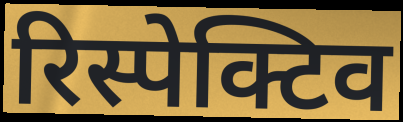
रिस्पेक्टिव